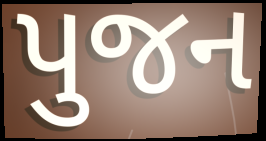
પુજન